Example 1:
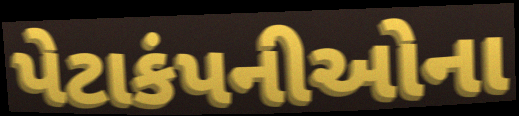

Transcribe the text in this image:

પેટાકંપનીઓના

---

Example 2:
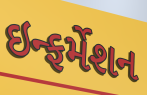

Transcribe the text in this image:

ઇન્ફર્મેશન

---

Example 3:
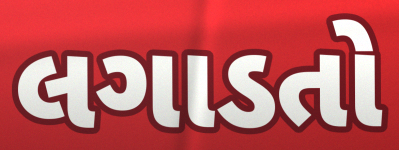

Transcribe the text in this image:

લગાડતો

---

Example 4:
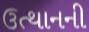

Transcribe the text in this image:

ઉત્થાનની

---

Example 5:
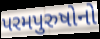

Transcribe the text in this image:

પરમપુરુષોનો